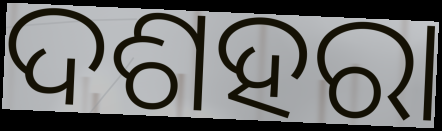
ଦଶହରା